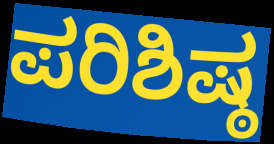
ಪರಿಶಿಷ್ಠ